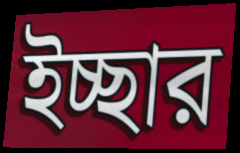
ইচ্ছার